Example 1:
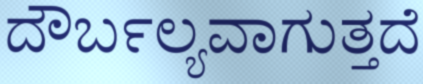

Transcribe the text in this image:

ದೌರ್ಬಲ್ಯವಾಗುತ್ತದೆ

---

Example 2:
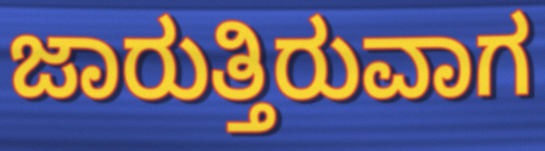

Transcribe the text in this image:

ಜಾರುತ್ತಿರುವಾಗ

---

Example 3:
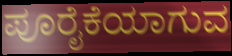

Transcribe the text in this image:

ಪೂರೈಕೆಯಾಗುವ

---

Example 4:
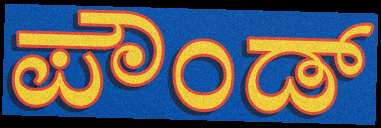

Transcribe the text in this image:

ಪೌಂಡ್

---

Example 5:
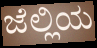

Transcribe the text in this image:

ಜೆಲ್ಲಿಯ